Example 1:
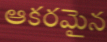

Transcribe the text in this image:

ఆకరమైన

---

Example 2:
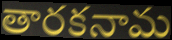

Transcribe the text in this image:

తారకనామ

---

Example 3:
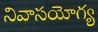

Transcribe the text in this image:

నివాసయోగ్య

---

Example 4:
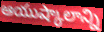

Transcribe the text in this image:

ఆయుష్కాలాన్ని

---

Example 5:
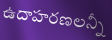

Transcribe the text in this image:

ఉదాహరణలన్నీ